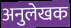
अनुलेखक